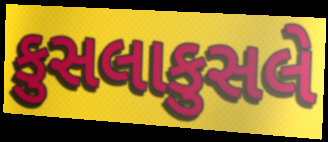
કુસલાકુસલે